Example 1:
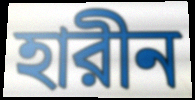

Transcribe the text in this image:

হারীন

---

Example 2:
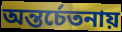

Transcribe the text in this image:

অন্তর্চেতনায়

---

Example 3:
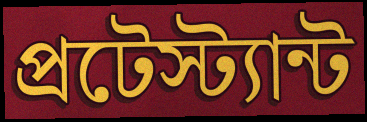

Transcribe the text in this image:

প্রটেস্ট্যান্ট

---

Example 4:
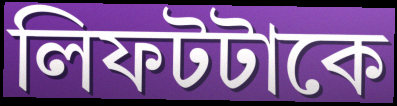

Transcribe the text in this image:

লিফটটাকে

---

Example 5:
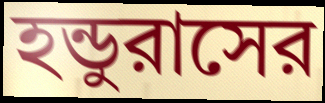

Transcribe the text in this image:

হন্ডুরাসের